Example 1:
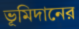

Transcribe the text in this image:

ভূমিদানের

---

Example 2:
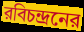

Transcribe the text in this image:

রবিচন্দ্রনের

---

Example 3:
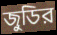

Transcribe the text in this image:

জুডির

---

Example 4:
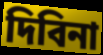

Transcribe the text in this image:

দিবিনা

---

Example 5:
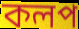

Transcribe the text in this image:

কলপ